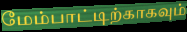
மேம்பாட்டிற்காகவும்